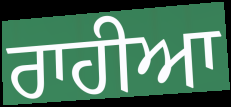
ਰਾਹੀਆ